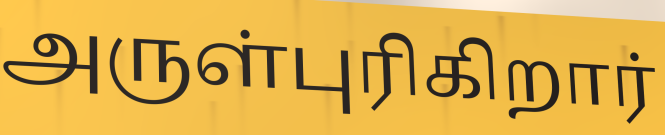
அருள்புரிகிறார்